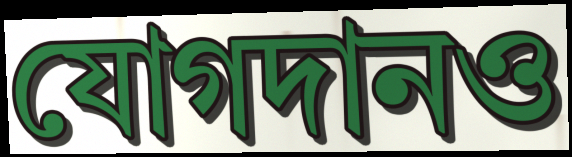
যোগদানও